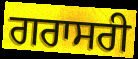
ਗਰਾਸਰੀ